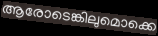
ആരോടെങ്കിലുമൊക്കെ